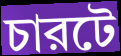
চারটে